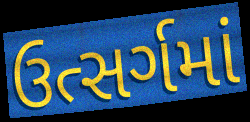
ઉત્સર્ગમાં